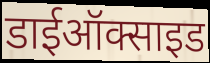
डाईऑक्साइड